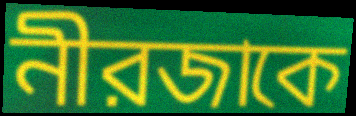
নীরজাকে